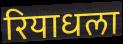
रियाधला